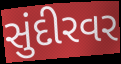
સુંદીરવર